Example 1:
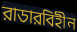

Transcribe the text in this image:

রাডারবিহীন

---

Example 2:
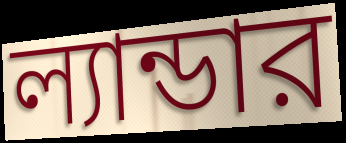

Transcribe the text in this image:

ল্যান্ডার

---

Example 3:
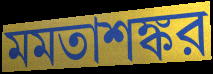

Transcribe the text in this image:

মমতাশঙ্কর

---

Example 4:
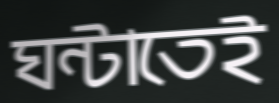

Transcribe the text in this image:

ঘন্টাতেই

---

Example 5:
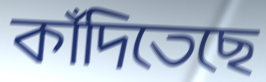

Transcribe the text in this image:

কাঁদিতেছে